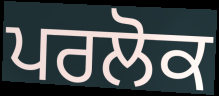
ਪਰਲੋਕ